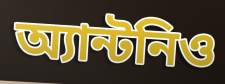
অ্যান্টনিও